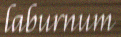
laburnum